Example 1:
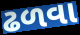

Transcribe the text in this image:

ઢળવા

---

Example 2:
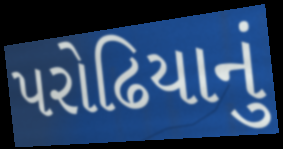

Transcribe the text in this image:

પરોઢિયાનું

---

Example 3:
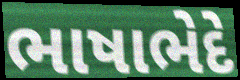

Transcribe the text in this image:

ભાષાભેદે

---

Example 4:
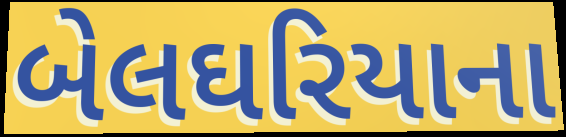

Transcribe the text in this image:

બેલઘરિયાના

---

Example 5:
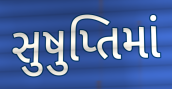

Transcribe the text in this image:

સુષુપ્તિમાં